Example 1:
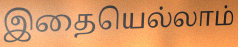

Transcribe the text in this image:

இதையெல்லாம்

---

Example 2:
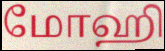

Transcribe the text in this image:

மோஹி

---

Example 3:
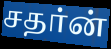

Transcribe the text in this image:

சதர்ன்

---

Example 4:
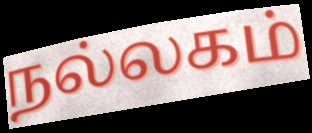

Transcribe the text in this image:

நல்லகம்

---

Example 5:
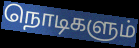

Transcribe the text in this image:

நொடிகளும்